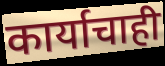
कार्याचाही